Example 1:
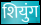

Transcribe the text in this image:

शियुंग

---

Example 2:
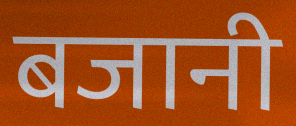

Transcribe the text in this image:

बजानी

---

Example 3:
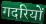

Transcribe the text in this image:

गदरियों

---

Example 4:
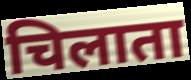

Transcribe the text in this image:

चिलाता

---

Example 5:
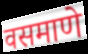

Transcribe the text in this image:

वसमाणे